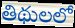
తిథులలో